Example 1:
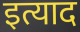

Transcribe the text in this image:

इत्याद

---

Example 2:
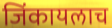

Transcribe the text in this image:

जिंकायलाच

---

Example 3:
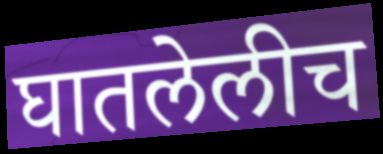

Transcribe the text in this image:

घातलेलीच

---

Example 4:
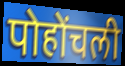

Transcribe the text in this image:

पोहोंचली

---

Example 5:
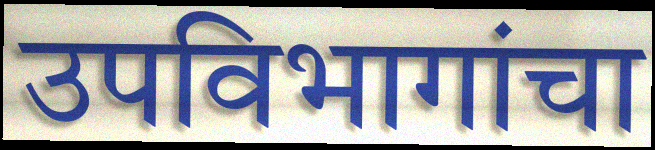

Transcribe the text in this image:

उपविभागांचा